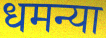
धमन्या